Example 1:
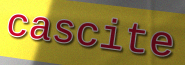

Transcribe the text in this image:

cascite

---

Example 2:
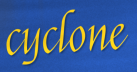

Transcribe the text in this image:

cyclone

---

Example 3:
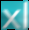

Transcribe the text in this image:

xl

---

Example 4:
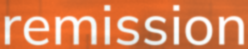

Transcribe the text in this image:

remission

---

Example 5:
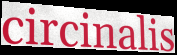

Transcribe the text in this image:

circinalis